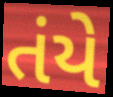
તંયે